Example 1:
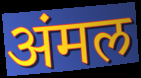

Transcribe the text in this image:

अंमल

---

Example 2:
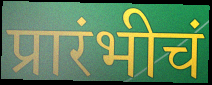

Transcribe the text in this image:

प्रारंभीचं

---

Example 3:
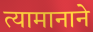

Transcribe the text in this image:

त्यामानाने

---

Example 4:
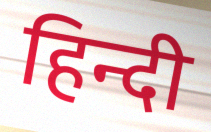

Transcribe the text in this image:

हिन्दी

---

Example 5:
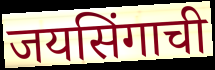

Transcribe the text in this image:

जयसिंगाची